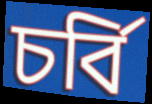
চৰ্বি